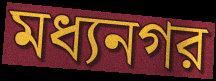
মধ্যনগর